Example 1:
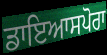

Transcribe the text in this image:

ਡਾਇਆਸਪੋਰਾ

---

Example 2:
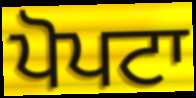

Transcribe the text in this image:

ਪੋਪਟਾ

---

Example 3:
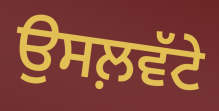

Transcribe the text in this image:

ਉਸਲ਼ਵੱਟੇ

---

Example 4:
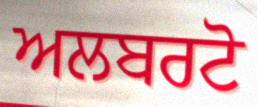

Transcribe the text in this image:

ਅਲਬਰਟੋ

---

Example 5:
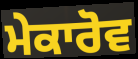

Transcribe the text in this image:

ਮੇਕਾਰੋਵ